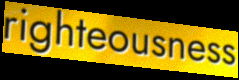
righteousness